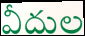
వీదుల